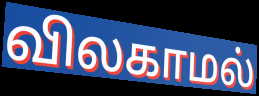
விலகாமல்